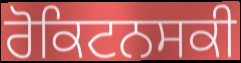
ਰੋਕਿਟਨਸਕੀ